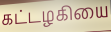
கட்டழகியை